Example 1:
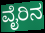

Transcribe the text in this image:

ವೈರಿನ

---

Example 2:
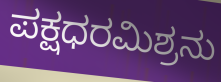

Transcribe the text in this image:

ಪಕ್ಷಧರಮಿಶ್ರನು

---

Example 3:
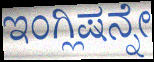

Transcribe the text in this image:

ಇಂಗ್ಲಿಷನ್ನೇ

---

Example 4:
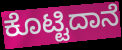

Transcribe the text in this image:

ಕೊಟ್ಟಿದಾನೆ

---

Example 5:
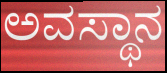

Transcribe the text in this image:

ಅವಸ್ಥಾನ